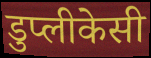
डुप्लीकेसी